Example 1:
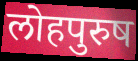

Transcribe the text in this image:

लोहपुरुष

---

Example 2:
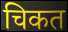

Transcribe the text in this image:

चिकत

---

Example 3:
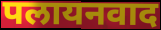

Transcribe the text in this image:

पलायनवाद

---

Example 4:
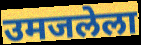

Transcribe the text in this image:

उमजलेला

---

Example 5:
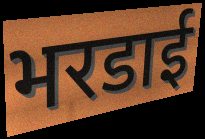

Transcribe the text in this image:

भरडाई